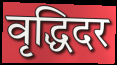
वृद्धिदर